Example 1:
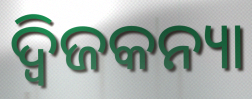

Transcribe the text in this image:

ଦ୍ୱିଜକନ୍ୟା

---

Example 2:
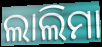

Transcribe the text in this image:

ଲାଲିମା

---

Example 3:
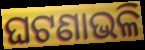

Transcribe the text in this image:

ଘଟଣାଭଳି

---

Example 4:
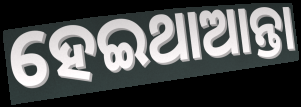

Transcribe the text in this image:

ହେଇଥାଆନ୍ତା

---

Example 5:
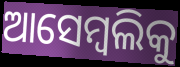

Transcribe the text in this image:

ଆସେମ୍ବଲିକୁ